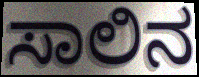
ಸಾಲಿನ